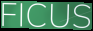
FICUS